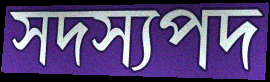
সদস্যপদ